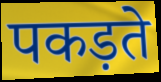
पकड़ते